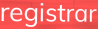
registrar